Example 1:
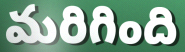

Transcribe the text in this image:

మరిగింది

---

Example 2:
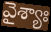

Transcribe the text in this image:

వైశ్యాః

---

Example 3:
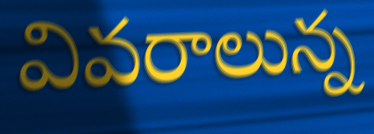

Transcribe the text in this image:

వివరాలున్న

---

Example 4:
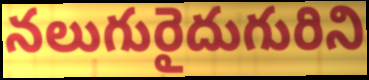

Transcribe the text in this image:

నలుగురైదుగురిని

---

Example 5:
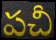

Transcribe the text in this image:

పచీ